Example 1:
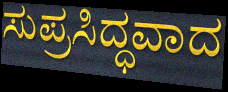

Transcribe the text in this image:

ಸುಪ್ರಸಿದ್ಧವಾದ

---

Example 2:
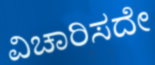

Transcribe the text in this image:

ವಿಚಾರಿಸದೇ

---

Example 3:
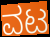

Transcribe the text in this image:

ವಟ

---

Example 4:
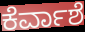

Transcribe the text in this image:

ಕೆರ್ವಾಶೆ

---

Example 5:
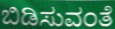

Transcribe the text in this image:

ಬಿಡಿಸುವಂತೆ